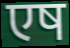
एष